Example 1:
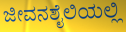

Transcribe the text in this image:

ಜೀವನಶೈಲಿಯಲ್ಲಿ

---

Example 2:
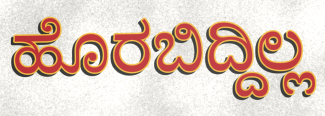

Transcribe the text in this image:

ಹೊರಬಿದ್ದಿಲ್ಲ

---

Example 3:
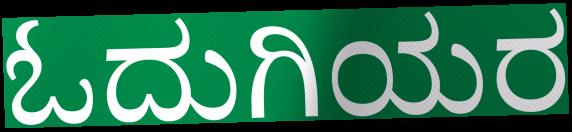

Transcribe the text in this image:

ಓದುಗಿಯರ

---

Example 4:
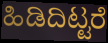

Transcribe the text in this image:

ಹಿಡಿದಿಟ್ಟರೆ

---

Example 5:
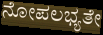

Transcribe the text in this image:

ನೋಪಲಭ್ಯತೇ